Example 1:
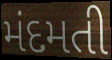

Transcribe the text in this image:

મંદમતી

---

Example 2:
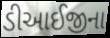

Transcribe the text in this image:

ડીઆઈજીના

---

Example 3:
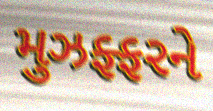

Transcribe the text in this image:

મુઝફ્ફરને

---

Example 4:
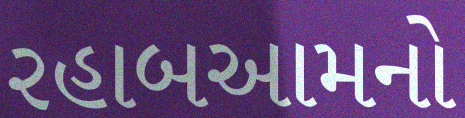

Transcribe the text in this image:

રહાબઆમનો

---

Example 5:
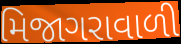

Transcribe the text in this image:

મિજાગરાવાળી